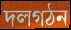
দলগঠন